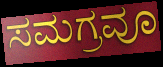
ಸಮಗ್ರವೂ